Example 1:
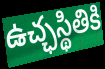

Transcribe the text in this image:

ఉచ్ఛస్థితికి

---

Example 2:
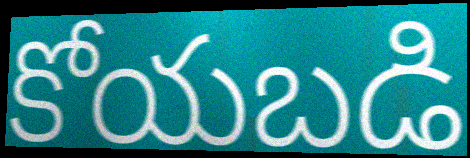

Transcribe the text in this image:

కోయబడి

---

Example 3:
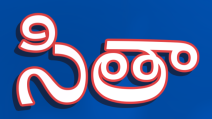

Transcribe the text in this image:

సితా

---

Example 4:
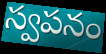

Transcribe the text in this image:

స్వపనం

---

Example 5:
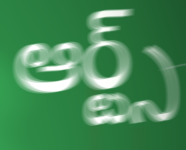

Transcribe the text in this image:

ఆర్ట్స్